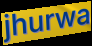
jhurwa